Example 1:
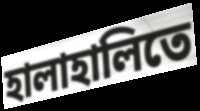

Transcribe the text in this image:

হালাহালিতে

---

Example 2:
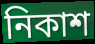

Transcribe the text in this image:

নিকাশ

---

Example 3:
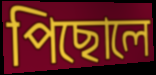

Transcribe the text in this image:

পিছোলে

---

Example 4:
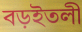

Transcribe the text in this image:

বড়ইতলী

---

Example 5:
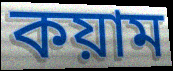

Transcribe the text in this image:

কয়াম